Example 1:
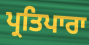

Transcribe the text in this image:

ਪ੍ਰਤਿਪਾਰਾ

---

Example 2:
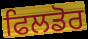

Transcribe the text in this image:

ਫਿਲਡੋਰ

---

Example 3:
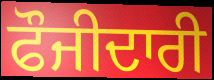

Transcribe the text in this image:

ਫੌਜੀਦਾਰੀ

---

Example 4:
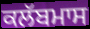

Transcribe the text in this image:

ਕਲੱਬਮਾਸ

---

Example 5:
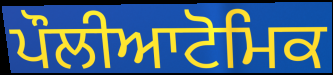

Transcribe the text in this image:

ਪੌਲੀਆਟੋਮਿਕ